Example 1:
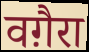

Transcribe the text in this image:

वग़ैरा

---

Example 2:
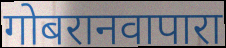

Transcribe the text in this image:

गोबरानवापारा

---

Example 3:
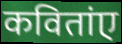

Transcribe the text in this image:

कवितांए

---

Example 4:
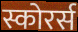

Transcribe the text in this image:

स्कोरर्स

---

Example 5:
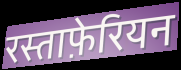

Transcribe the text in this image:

रस्ताफ़ेरियन